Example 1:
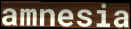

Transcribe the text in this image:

amnesia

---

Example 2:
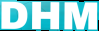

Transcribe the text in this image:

DHM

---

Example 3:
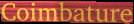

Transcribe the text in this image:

Coimbature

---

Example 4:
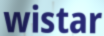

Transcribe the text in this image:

wistar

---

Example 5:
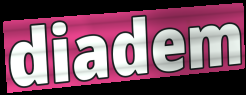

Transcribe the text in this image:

diadem